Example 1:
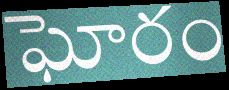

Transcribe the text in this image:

ఘోరం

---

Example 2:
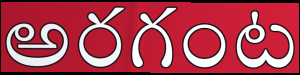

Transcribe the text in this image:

అరగంట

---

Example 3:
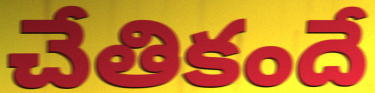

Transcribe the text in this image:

చేతికందే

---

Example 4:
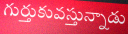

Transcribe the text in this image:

గుర్తుకువస్తున్నాడు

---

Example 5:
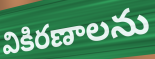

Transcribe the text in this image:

వికిరణాలను